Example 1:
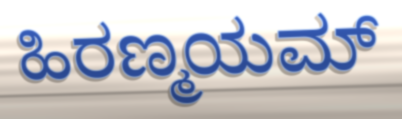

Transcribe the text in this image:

ಹಿರಣ್ಮಯಮ್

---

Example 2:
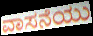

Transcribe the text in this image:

ವಾಸನೆಯು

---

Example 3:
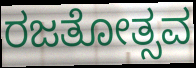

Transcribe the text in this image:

ರಜತೋತ್ಸವ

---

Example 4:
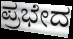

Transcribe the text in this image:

ಪ್ರಭೇದ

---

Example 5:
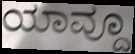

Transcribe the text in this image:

ಯಾವ್ದೂ